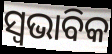
ସ୍ଵଭାବିକ